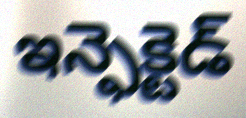
ఇన్ఫెక్టెడ్